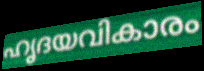
ഹൃദയവികാരം